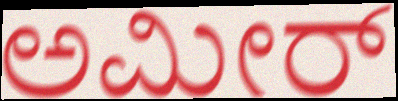
ಅಮೀರ್